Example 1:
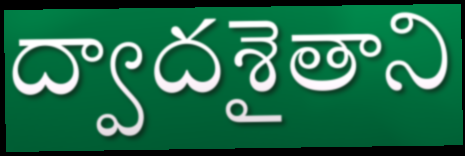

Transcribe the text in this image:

ద్వాదశైతాని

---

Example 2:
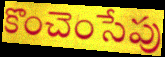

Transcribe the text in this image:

కొంచెంసేపు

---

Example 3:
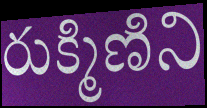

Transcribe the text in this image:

రుక్మిణిని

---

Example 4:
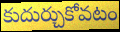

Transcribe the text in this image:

కుదుర్చుకోవటం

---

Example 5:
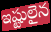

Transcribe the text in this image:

ఇష్టులైన